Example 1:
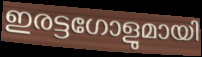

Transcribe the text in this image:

ഇരട്ടഗോളുമായി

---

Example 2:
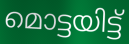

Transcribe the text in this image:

മൊട്ടയിട്ട്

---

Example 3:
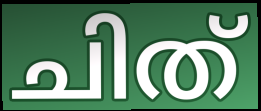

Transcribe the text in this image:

ചിത്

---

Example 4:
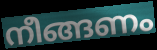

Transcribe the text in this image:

നീങ്ങണം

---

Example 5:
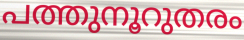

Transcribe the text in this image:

പത്തുനൂറുതരം